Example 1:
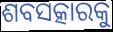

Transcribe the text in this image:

ଶବସତ୍କାରକୁ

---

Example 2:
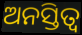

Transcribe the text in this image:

ଅନସ୍ତିତ୍ୱ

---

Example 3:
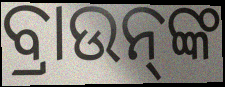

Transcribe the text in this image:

ବ୍ରାଉନ୍‌ଙ୍କ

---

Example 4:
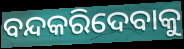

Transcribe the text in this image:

ବନ୍ଦକରିଦେବାକୁ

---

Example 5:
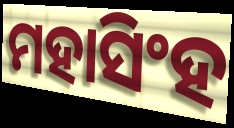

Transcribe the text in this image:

ମହାସିଂହ